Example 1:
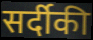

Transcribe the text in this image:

सर्दीकी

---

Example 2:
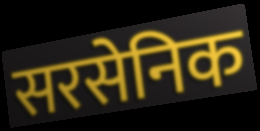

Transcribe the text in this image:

सरसेनिक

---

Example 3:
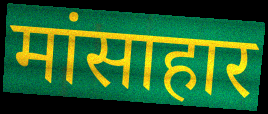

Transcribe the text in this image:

मांसाहार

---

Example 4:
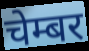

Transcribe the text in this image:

चेम्बर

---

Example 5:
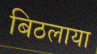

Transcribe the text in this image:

बिठलाया